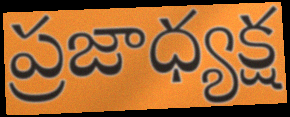
ప్రజాధ్యక్ష